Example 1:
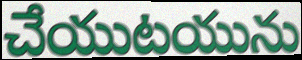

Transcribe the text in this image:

చేయుటయును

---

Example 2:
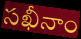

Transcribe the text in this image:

సఖీనాం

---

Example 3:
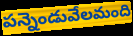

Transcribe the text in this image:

పన్నెండువేలమంది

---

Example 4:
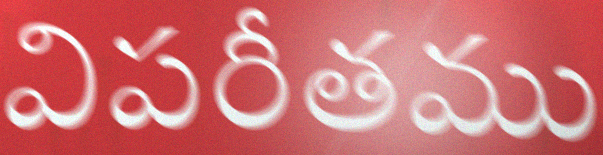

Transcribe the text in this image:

విపరీతము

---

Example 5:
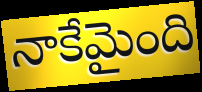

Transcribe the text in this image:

నాకేమైంది